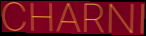
CHARNI